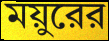
ময়ুরের